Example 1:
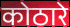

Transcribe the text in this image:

कोठारे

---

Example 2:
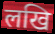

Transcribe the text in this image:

लखि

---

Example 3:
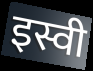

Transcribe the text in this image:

इस्वी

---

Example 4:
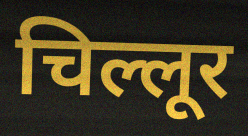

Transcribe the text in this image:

चिल्लूर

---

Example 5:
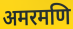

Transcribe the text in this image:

अमरमणि